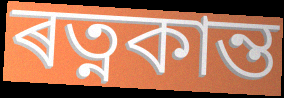
ৰত্নকান্ত